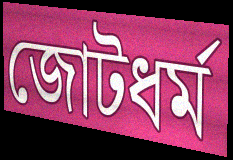
জোটধর্ম